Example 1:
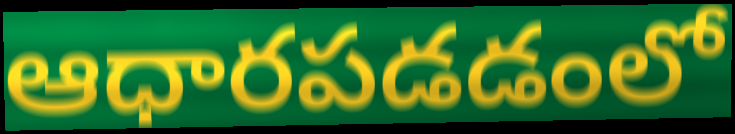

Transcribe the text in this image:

ఆధారపడడంలో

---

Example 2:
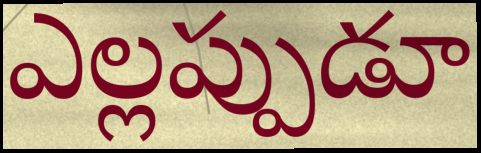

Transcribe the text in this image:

ఎల్లప్పుడూ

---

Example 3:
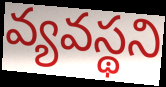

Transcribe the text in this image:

వ్యవస్థని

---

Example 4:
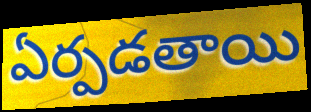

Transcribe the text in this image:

ఏర్పడతాయి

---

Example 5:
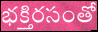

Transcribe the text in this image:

భక్తిరసంతో